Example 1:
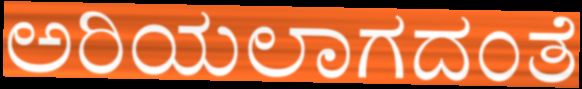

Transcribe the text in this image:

ಅರಿಯಲಾಗದಂತೆ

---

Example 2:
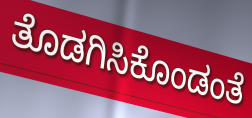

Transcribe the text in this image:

ತೊಡಗಿಸಿಕೊಂಡಂತೆ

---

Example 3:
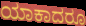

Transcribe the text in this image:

ಯಾಕಾದರೂ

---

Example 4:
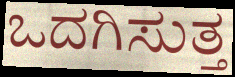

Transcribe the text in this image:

ಒದಗಿಸುತ್ತ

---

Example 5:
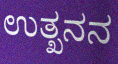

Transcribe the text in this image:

ಉತ್ಖನನ